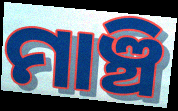
ମାଞ୍ଚି